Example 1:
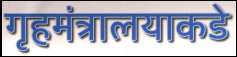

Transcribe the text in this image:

गृहमंत्रालयाकडे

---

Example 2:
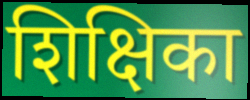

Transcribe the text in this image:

शिक्षिका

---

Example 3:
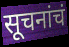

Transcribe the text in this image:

सूचनांचं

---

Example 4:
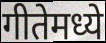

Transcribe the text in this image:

गीतेमध्ये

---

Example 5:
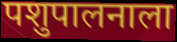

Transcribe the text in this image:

पशुपालनाला